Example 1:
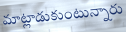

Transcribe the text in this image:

మాట్లాడుకుంటున్నారు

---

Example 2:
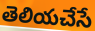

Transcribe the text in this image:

తెలియచేసే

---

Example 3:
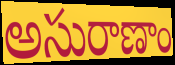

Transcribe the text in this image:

అసురాణాం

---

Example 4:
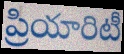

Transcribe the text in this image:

ప్రియారిటీ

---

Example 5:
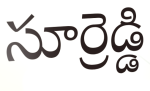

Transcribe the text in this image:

సూర్రెడ్డి